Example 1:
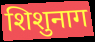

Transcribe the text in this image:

शिशुनाग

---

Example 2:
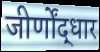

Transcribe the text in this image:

जीर्णोंद्धार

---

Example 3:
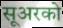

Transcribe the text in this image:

सूअरको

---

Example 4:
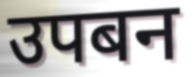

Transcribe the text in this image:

उपबन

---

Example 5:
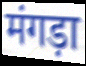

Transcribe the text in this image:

मंगड़ा